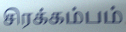
சிரக்கம்பம்